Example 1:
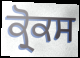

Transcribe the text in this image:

ਕ੍ਰੋਕਸ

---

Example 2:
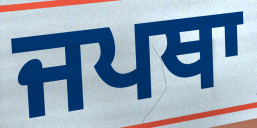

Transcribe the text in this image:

ਜਪਥਾ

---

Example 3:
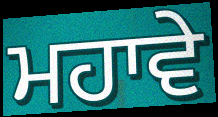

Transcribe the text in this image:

ਮਹਾਵੇ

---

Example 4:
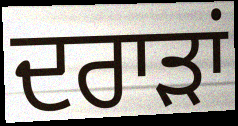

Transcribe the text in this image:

ਦਰਾੜਾਂ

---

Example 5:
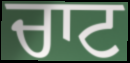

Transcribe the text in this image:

ਚਾਟ